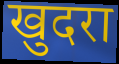
खुदरा